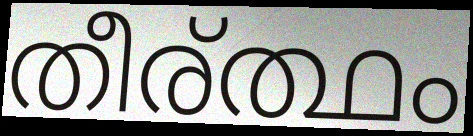
തീര്ത്ഥം